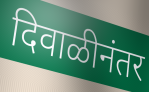
दिवाळीनंतर